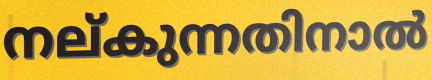
നല്കുന്നതിനാൽ